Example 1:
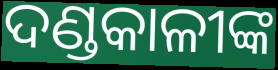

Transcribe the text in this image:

ଦଣ୍ଡକାଳୀଙ୍କ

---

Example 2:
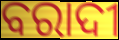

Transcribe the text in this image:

ବରାଦୀ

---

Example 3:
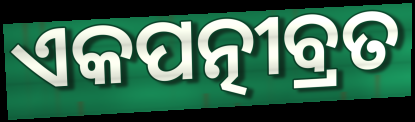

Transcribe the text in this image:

ଏକପତ୍ନୀବ୍ରତ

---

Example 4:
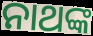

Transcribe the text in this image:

ନାଥଙ୍କ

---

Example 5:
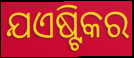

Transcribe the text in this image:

ଯଏଷ୍ଟିକର